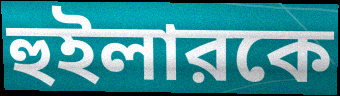
হুইলারকে